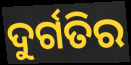
ଦୁର୍ଗତିର